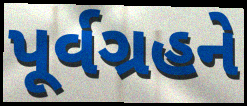
પૂર્વગ્રહને